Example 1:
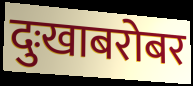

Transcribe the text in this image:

दुःखाबरोबर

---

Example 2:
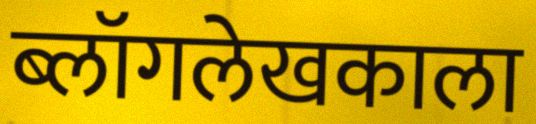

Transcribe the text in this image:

ब्लॉगलेखकाला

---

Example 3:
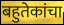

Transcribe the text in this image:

बहुतेकांचा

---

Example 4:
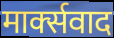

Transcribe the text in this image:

मार्क्‍सवाद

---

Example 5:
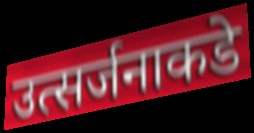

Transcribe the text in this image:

उत्सर्जनाकडे